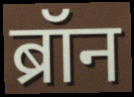
ब्रॉन